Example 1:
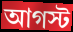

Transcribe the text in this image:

আগস্ট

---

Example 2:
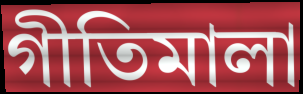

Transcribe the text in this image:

গীতিমালা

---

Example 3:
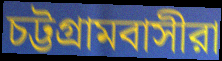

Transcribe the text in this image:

চট্টগ্রামবাসীরা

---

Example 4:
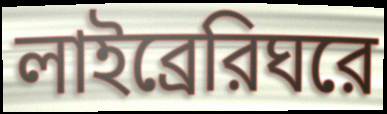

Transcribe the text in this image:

লাইব্রেরিঘরে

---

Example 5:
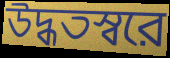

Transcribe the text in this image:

উদ্ধতস্বরে